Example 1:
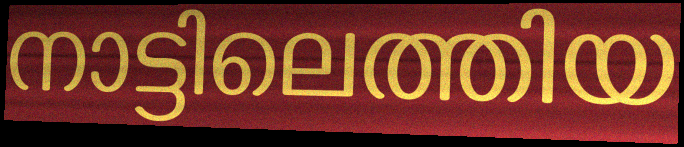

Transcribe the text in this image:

നാട്ടിലെത്തിയ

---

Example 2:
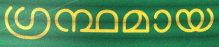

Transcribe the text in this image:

ഗ്രന്ഥമായ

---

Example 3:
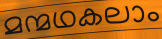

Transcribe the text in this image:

മന്മഥകലാം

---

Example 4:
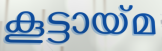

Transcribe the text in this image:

കൂട്ടായ്മ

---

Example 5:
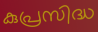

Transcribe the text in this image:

കുപ്രസിദ്ധ